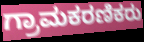
ಗ್ರಾಮಕರಣಿಕರು